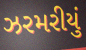
ઝરમરીયું